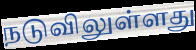
நடுவிலுள்ளது